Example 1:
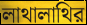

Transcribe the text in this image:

লাথালাথির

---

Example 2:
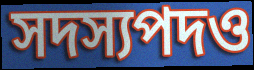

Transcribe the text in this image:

সদস্যপদও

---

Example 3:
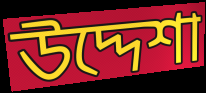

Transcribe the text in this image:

উদ্দেশা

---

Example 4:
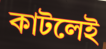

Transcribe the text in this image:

কাটলেই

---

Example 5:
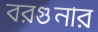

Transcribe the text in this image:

বরগুনার